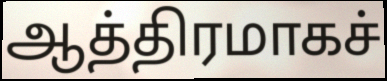
ஆத்திரமாகச்